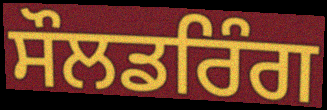
ਸੌਲਡਰਿੰਗ